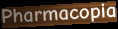
Pharmacopia